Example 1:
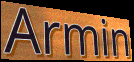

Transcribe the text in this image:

Armin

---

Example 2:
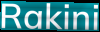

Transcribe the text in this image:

Rakini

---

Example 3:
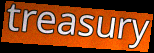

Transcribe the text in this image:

treasury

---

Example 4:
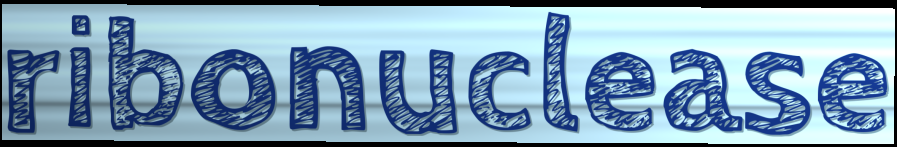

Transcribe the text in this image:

ribonuclease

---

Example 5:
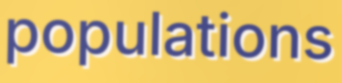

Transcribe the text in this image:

populations